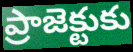
ప్రాజెక్టుకు